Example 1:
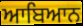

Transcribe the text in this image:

ਆਬਿਆਨ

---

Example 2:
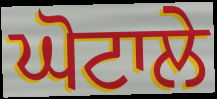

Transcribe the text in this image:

ਘੋਟਾਲੇ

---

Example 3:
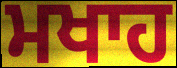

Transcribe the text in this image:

ਮਖਾਹ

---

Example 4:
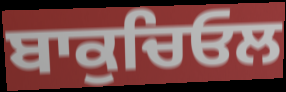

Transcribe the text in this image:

ਬਾਕੁਚਿਓਲ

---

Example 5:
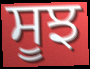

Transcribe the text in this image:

ਸੂਝ